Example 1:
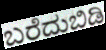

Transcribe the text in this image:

ಬರೆದುಬಿಡಿ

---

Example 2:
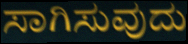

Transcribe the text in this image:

ಸಾಗಿಸುವುದು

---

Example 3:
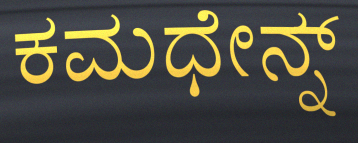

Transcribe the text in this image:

ಕಮಧೇನ್ನ್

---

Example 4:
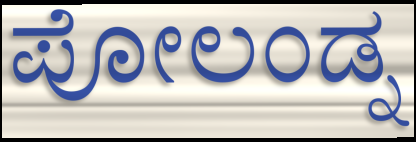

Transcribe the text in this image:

ಪೋಲಂಡ್ನ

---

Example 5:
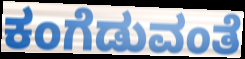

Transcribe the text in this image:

ಕಂಗೆಡುವಂತೆ